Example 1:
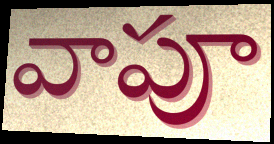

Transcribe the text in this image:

వాపూ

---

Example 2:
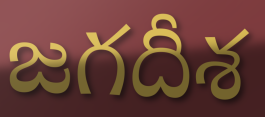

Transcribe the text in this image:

జగదీశ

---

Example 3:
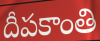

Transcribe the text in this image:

దీపకాంతి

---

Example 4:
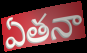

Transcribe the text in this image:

ఏతనా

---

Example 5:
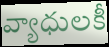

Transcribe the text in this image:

వ్యాధులకీ